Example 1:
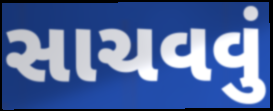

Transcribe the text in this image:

સાચવવું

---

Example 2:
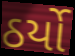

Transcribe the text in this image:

ઠર્યો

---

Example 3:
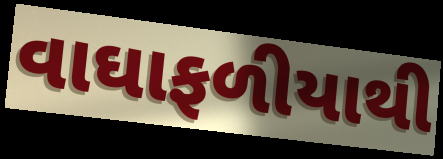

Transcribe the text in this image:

વાઘાફળીયાથી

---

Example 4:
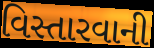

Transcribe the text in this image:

વિસ્તારવાની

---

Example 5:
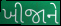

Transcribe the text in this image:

ખીજાને